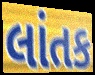
લાંતક